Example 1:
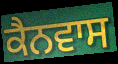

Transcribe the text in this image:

ਕੈਨਵਾਸ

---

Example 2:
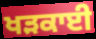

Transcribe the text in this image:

ਖੜਕਾਈ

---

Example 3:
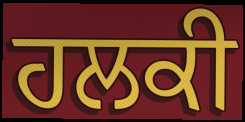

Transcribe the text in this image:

ਹਲਕੀ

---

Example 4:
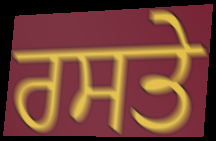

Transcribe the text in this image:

ਰਸਤੇ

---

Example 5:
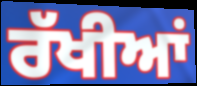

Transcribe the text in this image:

ਰੱਖੀਆਂ